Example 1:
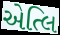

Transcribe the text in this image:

એત્લિ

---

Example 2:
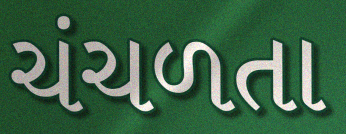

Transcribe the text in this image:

ચંચળતા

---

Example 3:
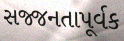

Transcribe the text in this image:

સજ્જનતાપૂર્વક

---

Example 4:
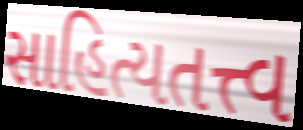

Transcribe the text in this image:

સાહિત્યતત્ત્વ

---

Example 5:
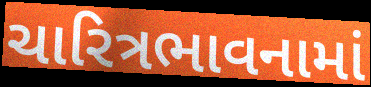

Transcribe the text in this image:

ચારિત્રભાવનામાં